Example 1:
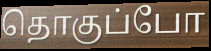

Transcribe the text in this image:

தொகுப்போ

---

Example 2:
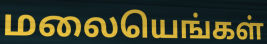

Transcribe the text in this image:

மலையெங்கள்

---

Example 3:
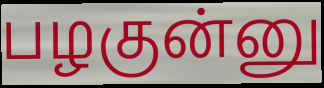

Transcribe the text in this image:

பழகுன்னு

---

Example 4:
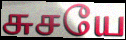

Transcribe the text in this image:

சுசயே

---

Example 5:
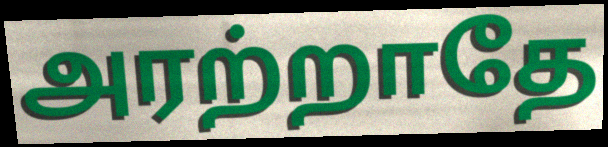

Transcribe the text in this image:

அரற்றாதே